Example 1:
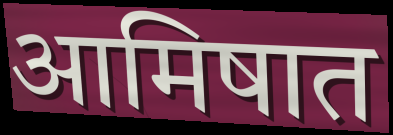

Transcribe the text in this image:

आमिषात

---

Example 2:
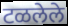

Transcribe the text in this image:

टळलेले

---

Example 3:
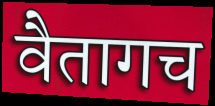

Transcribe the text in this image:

वैतागच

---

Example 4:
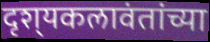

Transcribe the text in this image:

दृश्यकलावंतांच्या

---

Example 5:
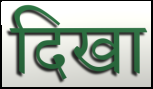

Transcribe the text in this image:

दिखा